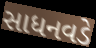
સાધનવડે